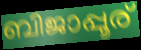
ബിജാപ്പൂര്